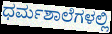
ಧರ್ಮಶಾಲೆಗಳಲ್ಲಿ